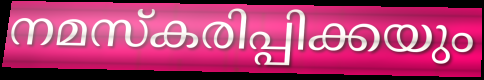
നമസ്കരിപ്പിക്കയും